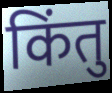
किंतु